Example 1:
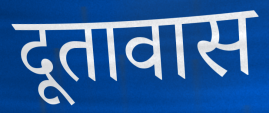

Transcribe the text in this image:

दूतावास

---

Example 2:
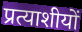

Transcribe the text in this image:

प्रत्याशीयों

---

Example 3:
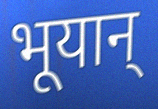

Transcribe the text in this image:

भूयान्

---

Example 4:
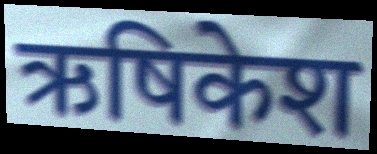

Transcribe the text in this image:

ऋषिकेश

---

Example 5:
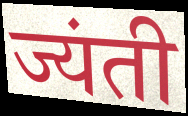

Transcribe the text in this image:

ज्यंती